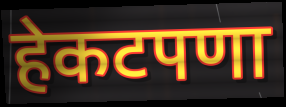
हेकटपणा